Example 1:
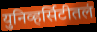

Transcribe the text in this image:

युनिव्हर्सिटीतलं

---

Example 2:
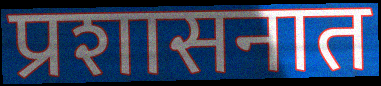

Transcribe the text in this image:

प्रशासनात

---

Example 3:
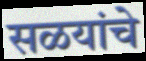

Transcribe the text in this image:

सळयांचे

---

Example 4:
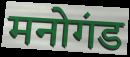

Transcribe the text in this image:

मनोगंड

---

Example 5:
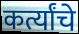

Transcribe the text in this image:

कर्त्यांचे